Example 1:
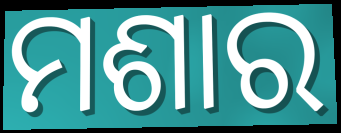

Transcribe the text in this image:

ମଶାର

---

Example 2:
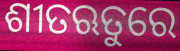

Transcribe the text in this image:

ଶୀତଋତୁରେ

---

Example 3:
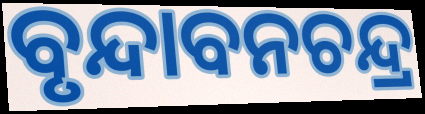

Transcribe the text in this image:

ବୃନ୍ଦାବନଚନ୍ଦ୍ର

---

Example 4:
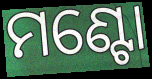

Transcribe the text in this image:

ମଣ୍ଟୋ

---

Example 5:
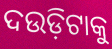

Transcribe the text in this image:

ଦଉଡ଼ିଟାକୁ